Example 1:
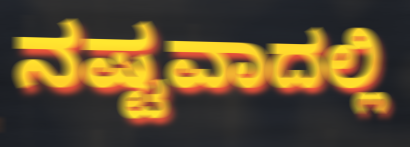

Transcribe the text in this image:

ನಷ್ಟವಾದಲ್ಲಿ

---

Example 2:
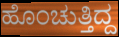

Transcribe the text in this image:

ಹೊಂಚುತ್ತಿದ್ದ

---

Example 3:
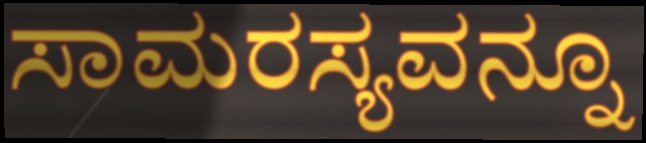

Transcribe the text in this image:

ಸಾಮರಸ್ಯವನ್ನೂ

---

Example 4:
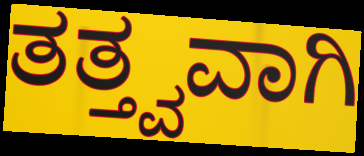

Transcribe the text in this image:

ತತ್ತ್ವವಾಗಿ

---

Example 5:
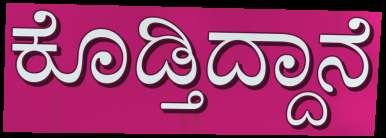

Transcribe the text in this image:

ಕೊಡ್ತಿದ್ದಾನೆ